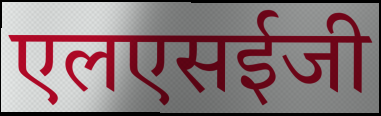
एलएसईजी